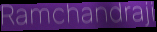
Ramchandraji